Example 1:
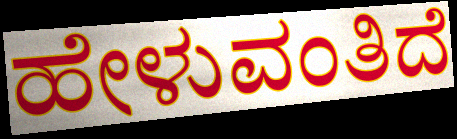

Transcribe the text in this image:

ಹೇಳುವಂತಿದೆ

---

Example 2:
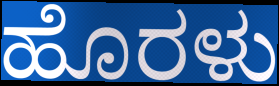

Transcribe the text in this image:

ಹೊರಳು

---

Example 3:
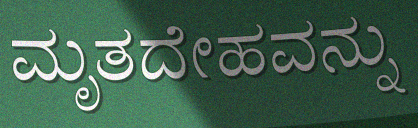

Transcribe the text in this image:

ಮೃತದೇಹವನ್ನು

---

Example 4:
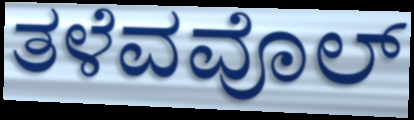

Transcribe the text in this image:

ತಳೆವವೊಲ್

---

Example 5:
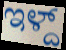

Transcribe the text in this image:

ಇಳ್ದ್